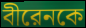
বীরেনকে